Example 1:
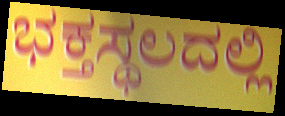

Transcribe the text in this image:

ಭಕ್ತಸ್ಥಲದಲ್ಲಿ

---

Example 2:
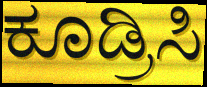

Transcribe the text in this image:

ಕೂಡ್ರಿಸಿ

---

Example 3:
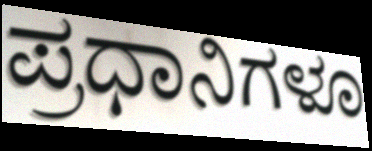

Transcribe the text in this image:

ಪ್ರಧಾನಿಗಳೂ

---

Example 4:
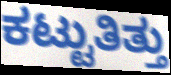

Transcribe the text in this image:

ಕಟ್ಟುತಿತ್ತು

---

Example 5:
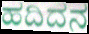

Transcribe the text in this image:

ಹದಿದನ